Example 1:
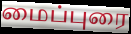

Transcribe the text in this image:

மைப்புரை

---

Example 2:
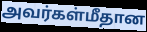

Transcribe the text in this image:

அவர்கள்மீதான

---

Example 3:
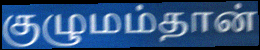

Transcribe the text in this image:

குழுமம்தான்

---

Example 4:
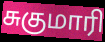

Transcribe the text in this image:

சுகுமாரி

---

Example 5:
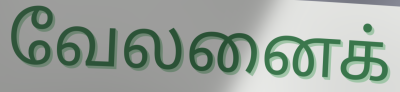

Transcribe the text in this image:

வேலனைக்